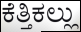
ಕೆತ್ತಿಕಲ್ಲು